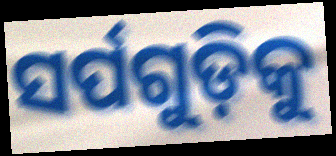
ସର୍ପଗୁଡ଼ିକୁ